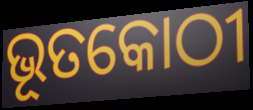
ଭୂତକୋଠୀ